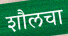
शौलचा